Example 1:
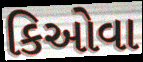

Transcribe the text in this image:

કિઓવા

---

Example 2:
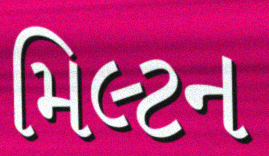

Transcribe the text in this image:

મિલ્ટન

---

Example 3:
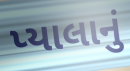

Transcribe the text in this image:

પ્યાલાનું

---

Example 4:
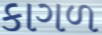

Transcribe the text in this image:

કાગળ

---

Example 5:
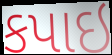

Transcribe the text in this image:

કપાઇ